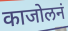
काजोलनं